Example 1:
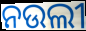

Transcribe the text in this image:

ନଉଲୀ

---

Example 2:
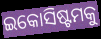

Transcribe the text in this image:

ଇକୋସିଷ୍ଟମକୁ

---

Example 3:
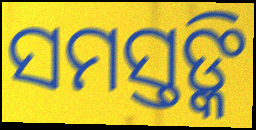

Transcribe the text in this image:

ସମସ୍ତଙ୍କି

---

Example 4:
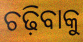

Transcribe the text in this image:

ଚଢ଼ିବାକୁ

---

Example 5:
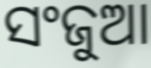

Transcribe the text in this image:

ସଂଜୁଆ